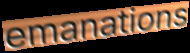
emanations